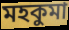
মহকুমা